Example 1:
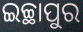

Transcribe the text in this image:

ଇଚ୍ଛାପୁର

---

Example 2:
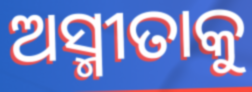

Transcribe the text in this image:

ଅସ୍ମୀତାକୁ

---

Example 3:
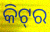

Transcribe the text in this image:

କିଟ୍‌ର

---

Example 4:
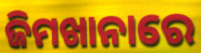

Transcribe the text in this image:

ଜିମଖାନାରେ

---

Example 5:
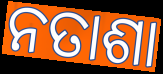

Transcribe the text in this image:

ନତାଶା